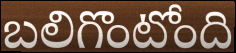
బలిగొంటోంది